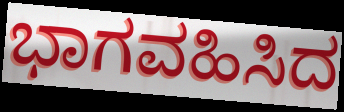
ಭಾಗವಹಿಸಿದ